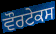
ਵੌਰਟੇਕਸ